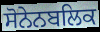
ਸੋਨੇਨਬਲਿਕ